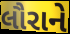
લૌરાને